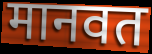
मानवत